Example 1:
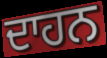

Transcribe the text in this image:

ਦਾਹਨ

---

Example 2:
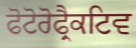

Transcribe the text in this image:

ਫੋਟੋਰੋਫ੍ਰੈਕਟਿਵ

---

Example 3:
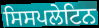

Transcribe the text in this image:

ਸਿਸਪਲੇਟਿਨ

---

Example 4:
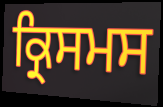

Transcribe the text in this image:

ਕ੍ਰਿਸਮਸ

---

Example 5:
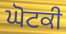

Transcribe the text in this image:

ਘੋਟਕੀ